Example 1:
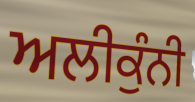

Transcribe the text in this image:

ਅਲੀਕੁੰਨੀ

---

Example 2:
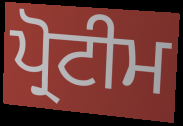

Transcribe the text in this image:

ਪ੍ਰੋਟੀਮ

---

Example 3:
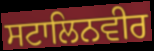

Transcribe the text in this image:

ਸਟਾਲਿਨਵੀਰ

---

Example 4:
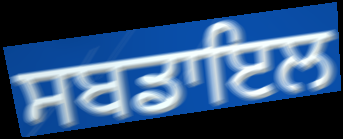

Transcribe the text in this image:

ਸਬਡਾਇਲ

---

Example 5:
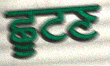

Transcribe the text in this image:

ਛੂਟਣ